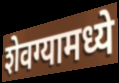
शेवग्यामध्ये